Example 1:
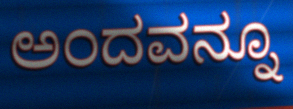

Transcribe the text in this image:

ಅಂದವನ್ನೂ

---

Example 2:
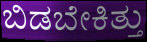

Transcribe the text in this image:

ಬಿಡಬೇಕಿತ್ತು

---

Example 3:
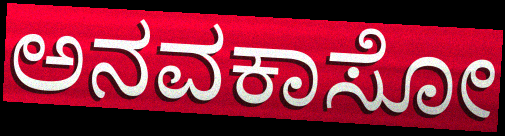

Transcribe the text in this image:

ಅನವಕಾಸೋ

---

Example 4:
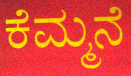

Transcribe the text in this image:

ಕೆಮ್ಮನೆ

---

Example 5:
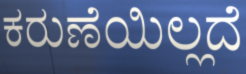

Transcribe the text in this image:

ಕರುಣೆಯಿಲ್ಲದೆ